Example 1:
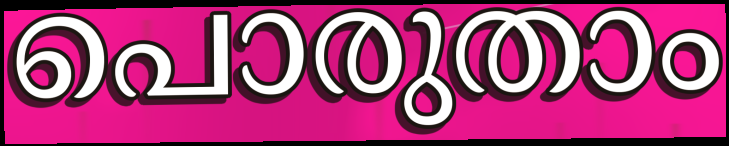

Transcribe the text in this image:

പൊരുതാം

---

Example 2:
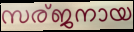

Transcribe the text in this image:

സര്ജനായ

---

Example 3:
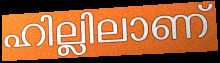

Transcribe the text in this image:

ഹില്ലിലാണ്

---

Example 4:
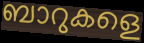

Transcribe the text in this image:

ബാറുകളെ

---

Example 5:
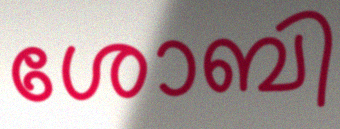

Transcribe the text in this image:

ശോബി